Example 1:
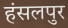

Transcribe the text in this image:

हंसलपुर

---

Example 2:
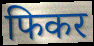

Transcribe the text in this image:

फिकर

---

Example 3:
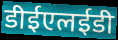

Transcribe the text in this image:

डीईएलईडी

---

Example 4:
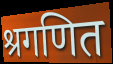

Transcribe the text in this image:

श्रगणित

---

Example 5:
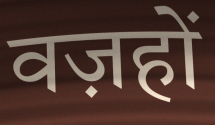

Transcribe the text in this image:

वज़हों